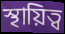
স্থায়িত্ব